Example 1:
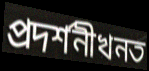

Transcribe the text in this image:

প্ৰদৰ্শনীখনত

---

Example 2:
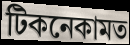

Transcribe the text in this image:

টিকনেকামত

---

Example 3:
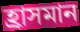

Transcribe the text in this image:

হ্ৰাসমান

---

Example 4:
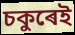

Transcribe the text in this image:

চকুৰেই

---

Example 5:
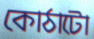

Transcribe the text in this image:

কোঠাটো